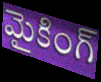
మైకింగ్